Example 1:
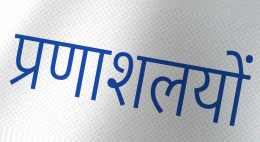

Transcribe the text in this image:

प्रणाशलयों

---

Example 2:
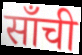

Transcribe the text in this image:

साँची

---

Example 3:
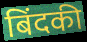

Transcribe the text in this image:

बिंदकी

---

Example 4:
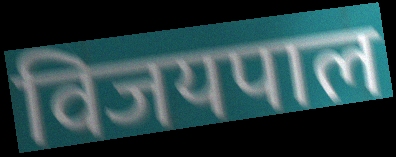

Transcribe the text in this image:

विजयपाल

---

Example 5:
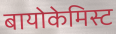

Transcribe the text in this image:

बायोकेमिस्ट